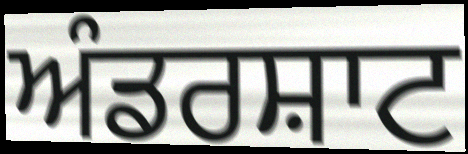
ਅੰਡਰਸ਼ਾਟ